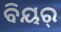
ବିୟର୍